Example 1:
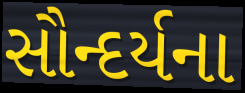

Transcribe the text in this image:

સૌન્દર્યના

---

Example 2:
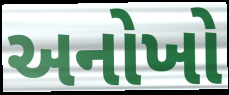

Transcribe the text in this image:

અનોખો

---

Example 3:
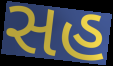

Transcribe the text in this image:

સહ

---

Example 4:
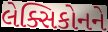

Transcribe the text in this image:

લેક્સિકોનને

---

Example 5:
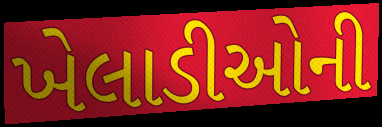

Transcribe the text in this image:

ખેલાડીઓની